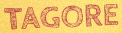
TAGORE